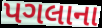
પગલાના